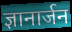
ज्ञानार्जन